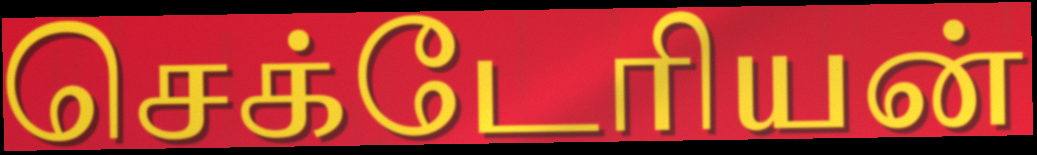
செக்டேரியன்